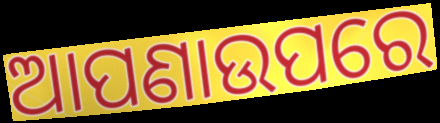
ଆପଣାଉପରେ